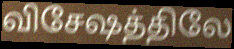
விசேஷத்திலே